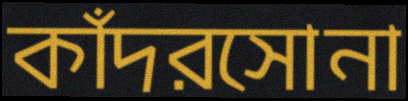
কাঁদরসোনা